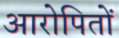
आरोपितों